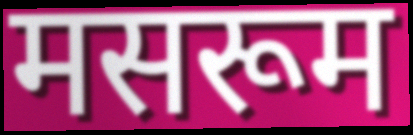
मसरूम